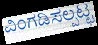
ವಿಂಗಡಿಸಲ್ಪಟ್ಟ